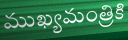
ముఖ్యమంత్రికి